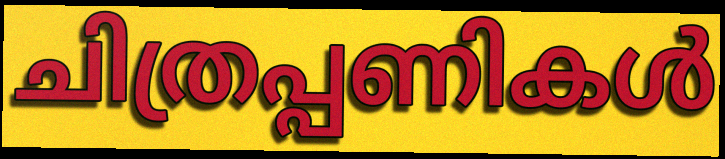
ചിത്രപ്പണികൾ